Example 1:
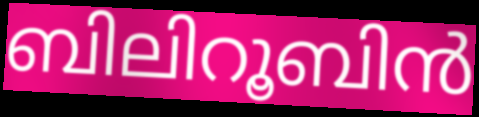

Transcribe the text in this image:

ബിലിറൂബിൻ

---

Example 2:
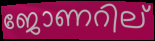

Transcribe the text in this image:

ജോണറില്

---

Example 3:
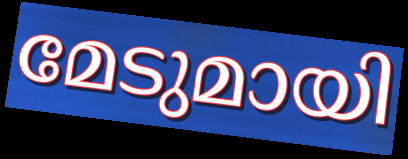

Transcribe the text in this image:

മേടുമായി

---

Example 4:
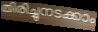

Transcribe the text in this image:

തിരിച്ചുനടക്കാം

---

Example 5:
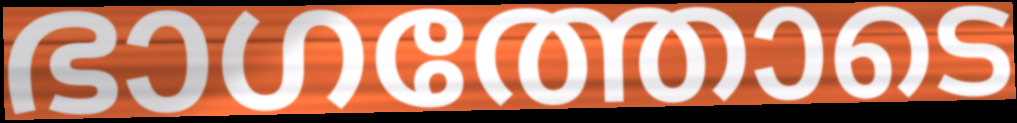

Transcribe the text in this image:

ഭാഗത്തോടെ